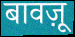
बावज़ू